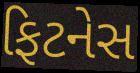
ફિટનેસ